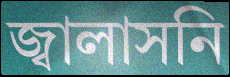
জ্বালাসনি